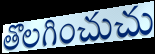
తొలగించుచు